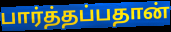
பார்த்தப்பதான்